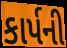
કાર્પની